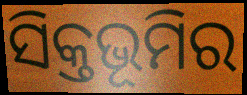
ସିକ୍ତଭୂମିର